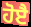
ਹੋੲੈ